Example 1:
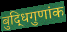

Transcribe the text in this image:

बुद्धिगुणांक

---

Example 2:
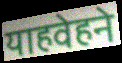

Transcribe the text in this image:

याहवेहने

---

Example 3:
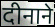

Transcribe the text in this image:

दीनाने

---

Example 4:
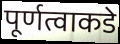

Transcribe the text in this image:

पूर्णत्वाकडे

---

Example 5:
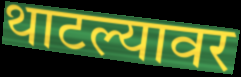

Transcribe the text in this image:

थाटल्यावर